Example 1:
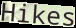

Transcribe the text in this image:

Hikes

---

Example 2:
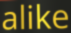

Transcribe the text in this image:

alike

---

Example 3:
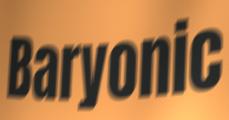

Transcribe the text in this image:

Baryonic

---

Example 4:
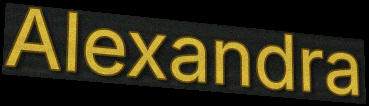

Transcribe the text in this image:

Alexandra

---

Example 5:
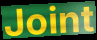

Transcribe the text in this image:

Joint